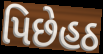
પિછેહઠ